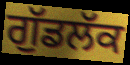
ਗੁੱਡਲੱਕ